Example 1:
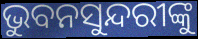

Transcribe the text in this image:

ଭୁବନସୁନ୍ଦରୀଙ୍କୁ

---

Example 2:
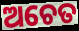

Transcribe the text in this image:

ଅଚେତ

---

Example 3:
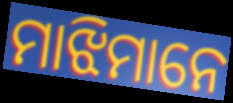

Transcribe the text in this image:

ମାଝିମାନେ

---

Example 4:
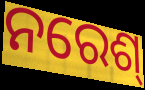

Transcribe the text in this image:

ନରେଶ୍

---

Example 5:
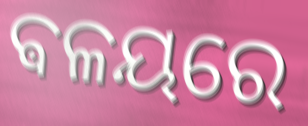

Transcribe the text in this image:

ଵଳୟରେ